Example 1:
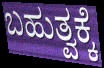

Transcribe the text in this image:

ಬಹುತ್ವಕ್ಕೆ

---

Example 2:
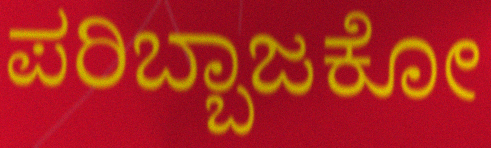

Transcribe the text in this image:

ಪರಿಬ್ಬಾಜಕೋ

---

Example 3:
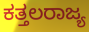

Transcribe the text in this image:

ಕತ್ತಲರಾಜ್ಯ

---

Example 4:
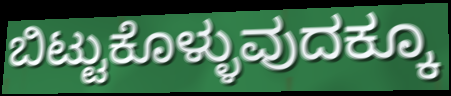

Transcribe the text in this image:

ಬಿಟ್ಟುಕೊಳ್ಳುವುದಕ್ಕೂ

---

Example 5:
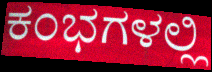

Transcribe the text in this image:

ಕಂಭಗಳಲ್ಲಿ